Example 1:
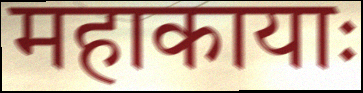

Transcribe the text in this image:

महाकायाः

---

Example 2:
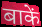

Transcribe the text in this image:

बाकें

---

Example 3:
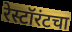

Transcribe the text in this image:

रेस्टॉरंटचा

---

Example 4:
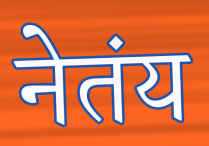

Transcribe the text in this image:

नेतंय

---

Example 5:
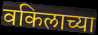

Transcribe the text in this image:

वकिलाच्या